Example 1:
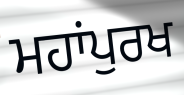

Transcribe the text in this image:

ਮਹਾਂਪੁਰਖ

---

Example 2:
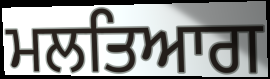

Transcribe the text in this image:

ਮਲਤਿਆਗ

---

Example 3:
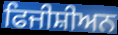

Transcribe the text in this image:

ਫਿਜੀਸ਼ੀਅਨ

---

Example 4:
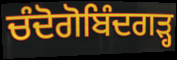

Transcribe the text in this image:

ਚੰਦੋਗੋਬਿੰਦਗੜ੍ਹ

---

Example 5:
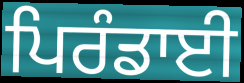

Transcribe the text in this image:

ਪਿਰੰਡਾਈ